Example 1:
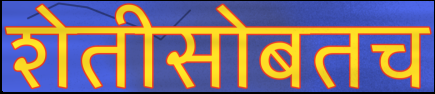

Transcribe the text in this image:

शेतीसोबतच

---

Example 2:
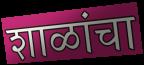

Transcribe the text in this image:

शाळांचा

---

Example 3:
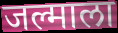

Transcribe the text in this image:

जल्माला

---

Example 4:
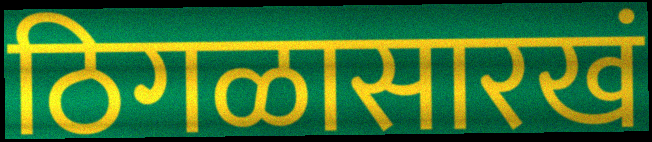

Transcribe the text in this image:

ठिगळासारखं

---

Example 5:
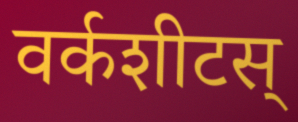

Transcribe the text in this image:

वर्कशीटस्